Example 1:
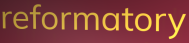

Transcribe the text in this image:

reformatory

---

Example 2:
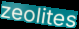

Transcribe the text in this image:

zeolites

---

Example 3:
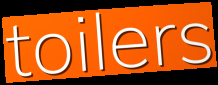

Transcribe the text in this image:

toilers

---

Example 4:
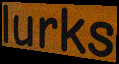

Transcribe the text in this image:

lurks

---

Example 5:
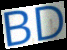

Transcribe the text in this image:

BD